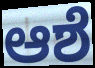
ಆಶೆ